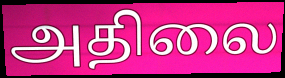
அதிலை